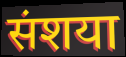
संशया